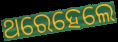
ଥରେହେଲେ